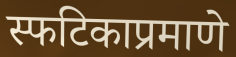
स्फटिकाप्रमाणे